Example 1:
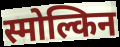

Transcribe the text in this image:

स्मोल्किन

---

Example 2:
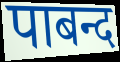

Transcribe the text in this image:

पाबन्द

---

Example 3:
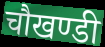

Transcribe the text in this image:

चौखण्डी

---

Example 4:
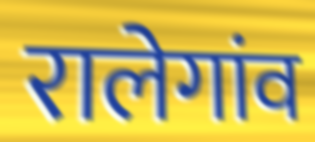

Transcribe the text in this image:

रालेगांव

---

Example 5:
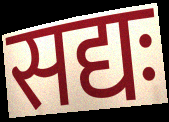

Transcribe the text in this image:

सद्यः